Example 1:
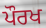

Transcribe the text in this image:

ਪੌਰਖ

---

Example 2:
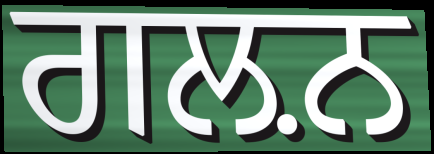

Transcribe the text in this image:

ਗਲ਼ਨ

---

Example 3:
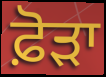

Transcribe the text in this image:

ਫ਼ੋੜਾ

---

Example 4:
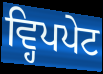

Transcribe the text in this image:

ਵ੍ਹਿਪਪੇਟ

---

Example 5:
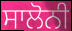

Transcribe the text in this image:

ਸਾਲੋਨੀ